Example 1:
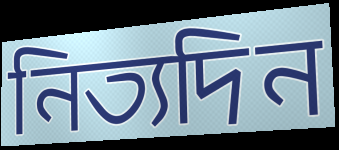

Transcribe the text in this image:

নিত্যদিন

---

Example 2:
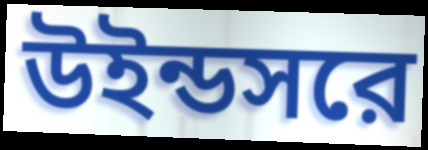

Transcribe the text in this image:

উইন্ডসরে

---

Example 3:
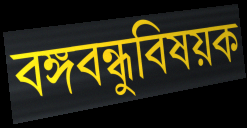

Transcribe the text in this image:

বঙ্গবন্ধুবিষয়ক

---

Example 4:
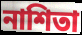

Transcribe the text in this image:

নাশিতা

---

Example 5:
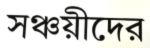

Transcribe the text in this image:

সঞ্চয়ীদের